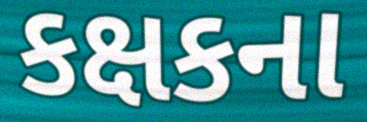
કક્ષકના